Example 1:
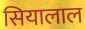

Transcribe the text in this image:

सियालाल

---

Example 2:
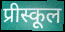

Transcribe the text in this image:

प्रीस्कूल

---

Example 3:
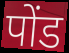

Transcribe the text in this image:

पोंड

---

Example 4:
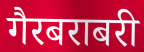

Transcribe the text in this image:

गैरबराबरी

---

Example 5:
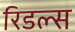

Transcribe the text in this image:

रिडल्स